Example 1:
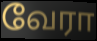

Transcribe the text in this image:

வேரா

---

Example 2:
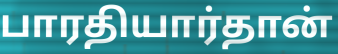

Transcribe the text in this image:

பாரதியார்தான்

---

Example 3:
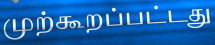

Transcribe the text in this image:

முற்கூறப்பட்டது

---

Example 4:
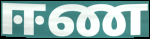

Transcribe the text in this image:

ஈண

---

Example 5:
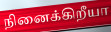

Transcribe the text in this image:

நினைக்கிறீயா